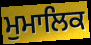
ਮੁਮਾਲਿਕ